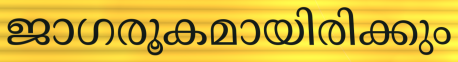
ജാഗരൂകമായിരിക്കും